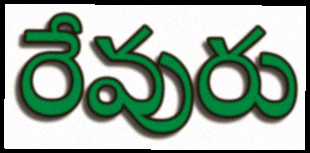
రేవురు